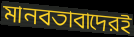
মানবতাবাদেরই